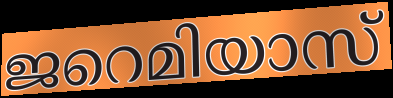
ജറെമിയാസ്